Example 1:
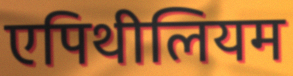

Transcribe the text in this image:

एपिथीलियम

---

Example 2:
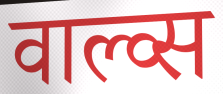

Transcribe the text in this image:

वाल्व्स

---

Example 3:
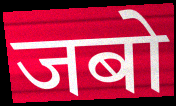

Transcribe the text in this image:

जबो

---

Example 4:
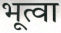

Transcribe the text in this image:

भूत्वा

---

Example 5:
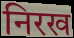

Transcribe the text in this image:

निरख